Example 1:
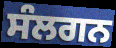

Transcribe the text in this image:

ਸੰਲਗਨ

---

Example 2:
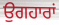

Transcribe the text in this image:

ਉਗਹਾਰਾਂ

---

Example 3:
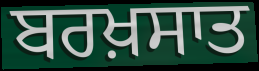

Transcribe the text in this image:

ਬਰਖ਼ਸਾਤ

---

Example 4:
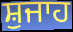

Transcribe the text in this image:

ਸ਼ੁਜਾਹ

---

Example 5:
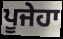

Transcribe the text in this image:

ਪੂਜੇਹਾ